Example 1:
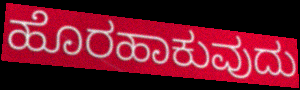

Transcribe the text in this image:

ಹೊರಹಾಕುವುದು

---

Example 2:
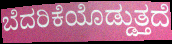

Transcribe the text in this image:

ಬೆದರಿಕೆಯೊಡ್ಡುತ್ತದೆ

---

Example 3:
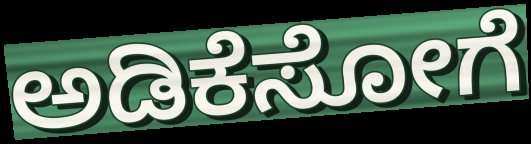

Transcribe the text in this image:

ಅಡಿಕೆಸೋಗೆ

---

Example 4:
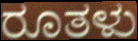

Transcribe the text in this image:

ರೂತಳು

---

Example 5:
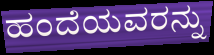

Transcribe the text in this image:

ಹಂದೆಯವರನ್ನು